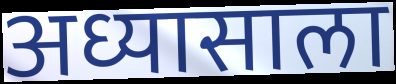
अध्यासाला